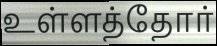
உள்ளத்தோர்